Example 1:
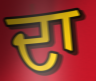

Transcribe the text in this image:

ਦਾ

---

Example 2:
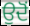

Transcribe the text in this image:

ਉਦੋਂ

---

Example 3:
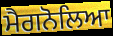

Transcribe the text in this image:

ਮੈਗਨੋਲਿਆ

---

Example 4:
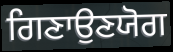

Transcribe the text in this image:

ਗਿਣਾਉਣਯੋਗ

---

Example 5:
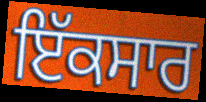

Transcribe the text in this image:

ਇੱਕਸਾਰ